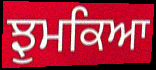
ਝੁਮਕਿਆ